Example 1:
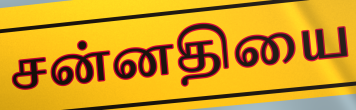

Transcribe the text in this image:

சன்னதியை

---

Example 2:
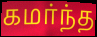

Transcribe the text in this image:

கமர்ந்த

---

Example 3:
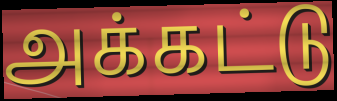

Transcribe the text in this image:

அக்கட்டு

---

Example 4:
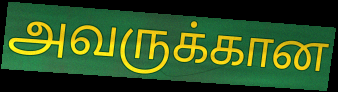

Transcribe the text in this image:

அவருக்கான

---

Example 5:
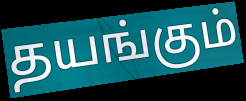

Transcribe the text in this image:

தயங்கும்